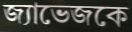
জ্যাভেজকে